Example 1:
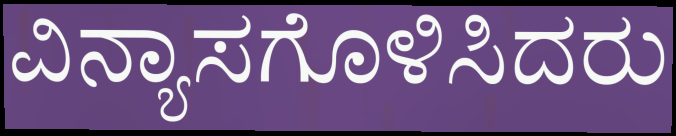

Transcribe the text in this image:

ವಿನ್ಯಾಸಗೊಳಿಸಿದರು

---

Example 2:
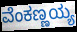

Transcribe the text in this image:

ವೆಂಕಣ್ಣಯ್ಯ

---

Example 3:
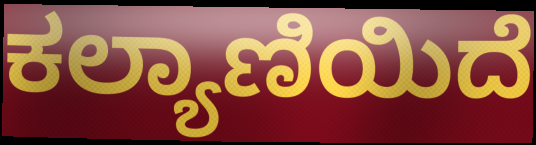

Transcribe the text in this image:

ಕಲ್ಯಾಣಿಯಿದೆ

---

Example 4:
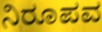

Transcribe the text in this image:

ನಿರೂಪವ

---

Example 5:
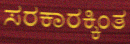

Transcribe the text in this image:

ಸರಕಾರಕ್ಕಿಂತ